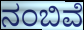
ನಂಬಿವೆ